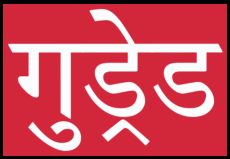
गुड्रेड